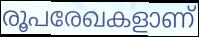
രൂപരേഖകളാണ്